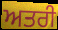
ਅਤਰੀ